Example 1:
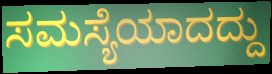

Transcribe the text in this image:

ಸಮಸ್ಯೆಯಾದದ್ದು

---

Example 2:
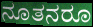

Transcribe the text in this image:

ನೂತನರೂ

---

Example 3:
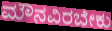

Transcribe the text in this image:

ಮೌನವಿರಬೇಕು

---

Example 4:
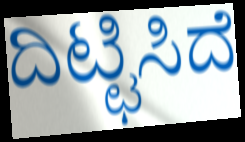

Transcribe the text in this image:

ದಿಟ್ಟಿಸಿದೆ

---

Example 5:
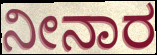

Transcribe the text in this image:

ನೀನಾರ